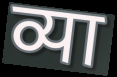
व्या